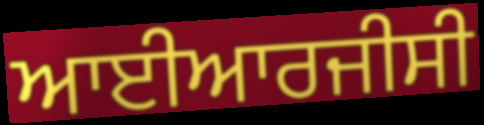
ਆਈਆਰਜੀਸੀ